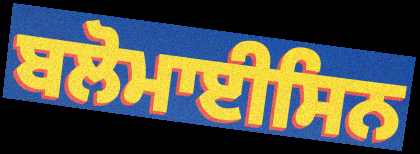
ਬਲੋਮਾਈਸਿਨ